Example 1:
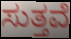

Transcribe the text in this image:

ಸುತ್ತವೆ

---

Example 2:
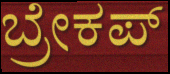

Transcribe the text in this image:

ಬ್ರೇಕಪ್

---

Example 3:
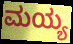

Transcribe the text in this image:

ಮಯ್ಯ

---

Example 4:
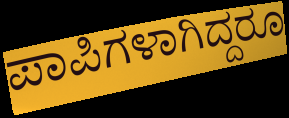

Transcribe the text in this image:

ಪಾಪಿಗಳಾಗಿದ್ದರೂ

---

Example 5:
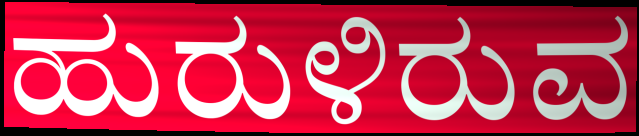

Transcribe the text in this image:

ಹುರುಳಿರುವ